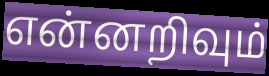
என்னறிவும்